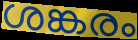
ശങ്കരം